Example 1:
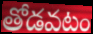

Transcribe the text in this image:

తోడవటం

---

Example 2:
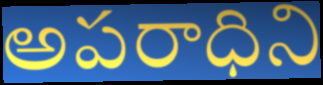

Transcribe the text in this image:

అపరాధిని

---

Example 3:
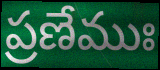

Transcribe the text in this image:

ప్రణేముః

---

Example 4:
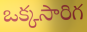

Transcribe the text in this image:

ఒక్కసారిగ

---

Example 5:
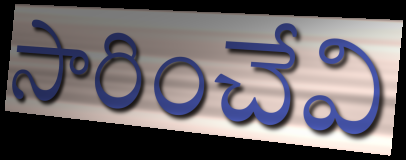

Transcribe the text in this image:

సారించేవి